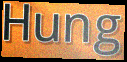
Hung